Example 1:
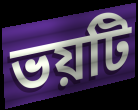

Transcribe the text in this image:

ভয়টি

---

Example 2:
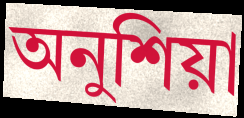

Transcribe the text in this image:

অনুশিয়া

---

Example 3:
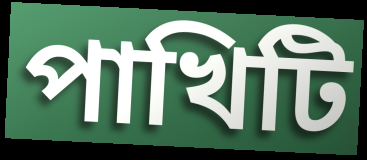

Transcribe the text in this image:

পাখিটি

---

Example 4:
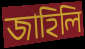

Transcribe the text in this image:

জাহিলি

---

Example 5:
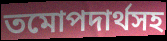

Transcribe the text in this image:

তমোপদার্থসহ